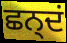
ਛਨ੍ਦਂ